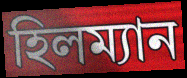
হিলম্যান